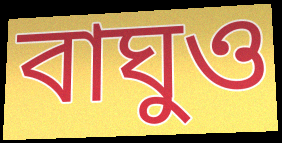
বাঘুও